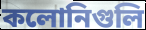
কলোনিগুলি